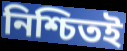
নিশ্চিতই